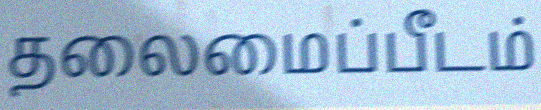
தலைமைப்பீடம்